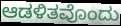
ಆಡಳಿತವೊಂದು